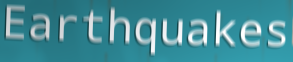
Earthquakes